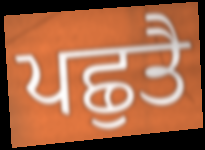
ਪਛੁਤੈ